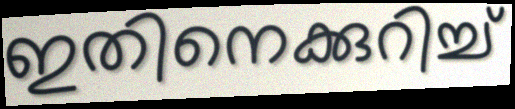
ഇതിനെക്കുറിച്ച്